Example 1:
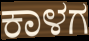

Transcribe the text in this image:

ಕಾಳಗ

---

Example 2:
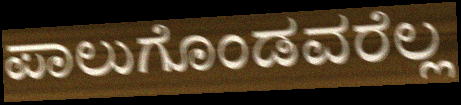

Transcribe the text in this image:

ಪಾಲುಗೊಂಡವರೆಲ್ಲ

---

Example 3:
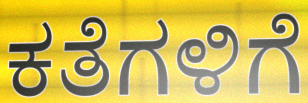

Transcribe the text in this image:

ಕತೆಗಳಿಗೆ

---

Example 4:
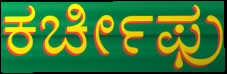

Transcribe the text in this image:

ಕರ್ಚೀಫು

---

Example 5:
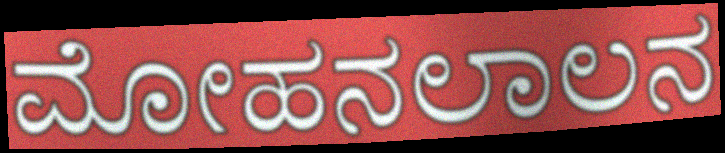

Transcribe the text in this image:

ಮೋಹನಲಾಲನ